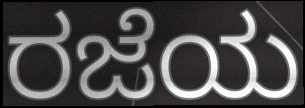
ರಜೆಯ